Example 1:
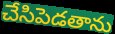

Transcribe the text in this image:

చేసిపెడతాను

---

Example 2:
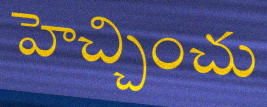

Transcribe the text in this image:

హెచ్చించు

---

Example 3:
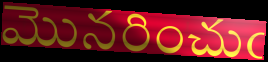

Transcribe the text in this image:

మొనరించుఁ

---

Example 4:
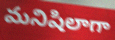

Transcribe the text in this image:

మనిషిలాగా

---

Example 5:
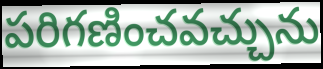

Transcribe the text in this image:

పరిగణించవచ్చును